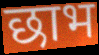
छाभ